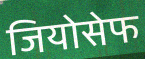
जियोसेफ